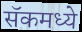
सॅकमध्ये